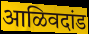
आळिवदांड